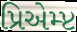
પ્રિએમ્પ્ટ